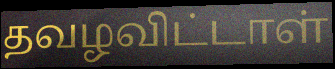
தவழவிட்டாள்